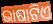
ଭାଷାଟିଏ